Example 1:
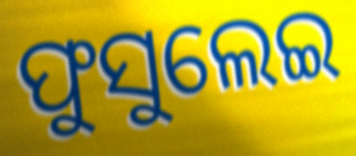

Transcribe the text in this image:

ଫୁସୁଲେଇ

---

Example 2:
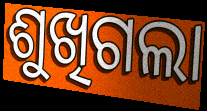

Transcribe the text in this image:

ଶୁଖିଗଲା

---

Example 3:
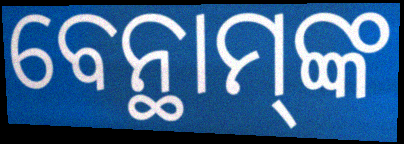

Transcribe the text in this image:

ବେନ୍ଥାମ୍‌ଙ୍କ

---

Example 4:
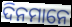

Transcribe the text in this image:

ଦିନମାନେ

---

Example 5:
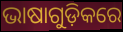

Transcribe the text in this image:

ଭାଷାଗୁଡ଼ିକରେ